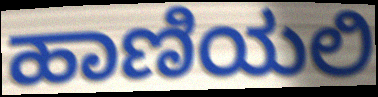
ಹಾಣಿಯಲಿ